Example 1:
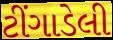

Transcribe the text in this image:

ટીંગાડેલી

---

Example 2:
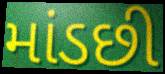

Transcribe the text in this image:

માંડછી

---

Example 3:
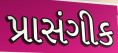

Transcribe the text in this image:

પ્રાસંગીક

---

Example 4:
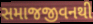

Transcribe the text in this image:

સમાજજીવનથી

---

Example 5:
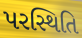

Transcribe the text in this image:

પરસ્થિતિ